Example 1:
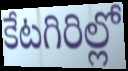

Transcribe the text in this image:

కేటగిరిల్లో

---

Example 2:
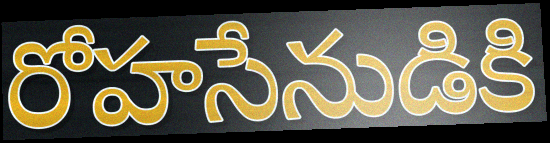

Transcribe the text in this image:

రోహసేనుడికి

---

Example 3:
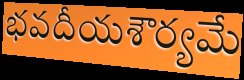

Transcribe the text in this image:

భవదీయశౌర్యమే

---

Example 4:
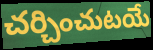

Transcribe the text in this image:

చర్చించుటయే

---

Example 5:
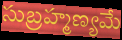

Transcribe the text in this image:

సుబ్రహ్మణ్యమే